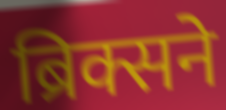
ब्रिक्सने